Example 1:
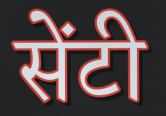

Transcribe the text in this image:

सेंटी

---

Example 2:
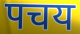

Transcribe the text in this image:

पचय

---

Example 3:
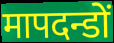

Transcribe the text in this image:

मापदन्डों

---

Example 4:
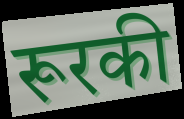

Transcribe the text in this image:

रूरकी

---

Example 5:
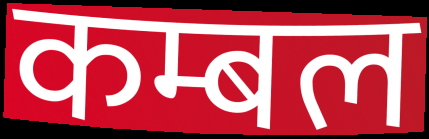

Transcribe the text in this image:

कम्बल